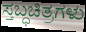
ಸ್ತಬ್ಧಚಿತ್ರಗಳು